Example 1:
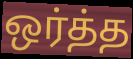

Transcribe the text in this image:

ஒர்த்த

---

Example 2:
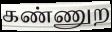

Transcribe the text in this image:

கண்ணுற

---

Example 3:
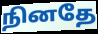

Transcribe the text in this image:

நினதே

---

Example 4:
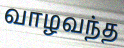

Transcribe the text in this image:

வாழவந்த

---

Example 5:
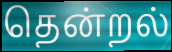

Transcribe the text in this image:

தென்றல்